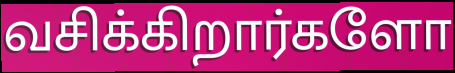
வசிக்கிறார்களோ